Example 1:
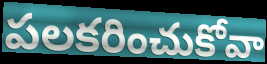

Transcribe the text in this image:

పలకరించుకోవా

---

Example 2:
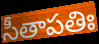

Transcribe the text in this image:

సీతాపతిః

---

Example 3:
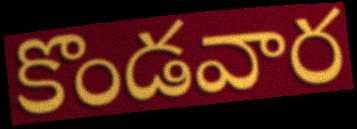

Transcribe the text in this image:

కొండవార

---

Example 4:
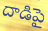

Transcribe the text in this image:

దాడిపై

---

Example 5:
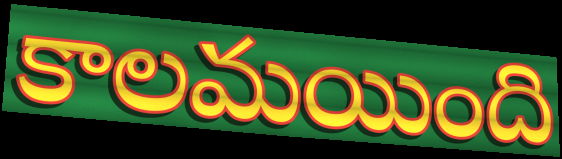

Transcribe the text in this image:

కాలమయింది